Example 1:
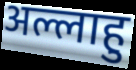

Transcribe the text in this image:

अल्लाहु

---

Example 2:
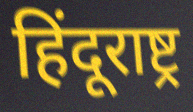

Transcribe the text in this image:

हिंदूराष्ट्र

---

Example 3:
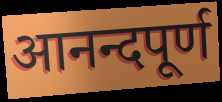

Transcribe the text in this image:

आनन्दपूर्ण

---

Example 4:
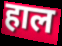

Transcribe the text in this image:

हाल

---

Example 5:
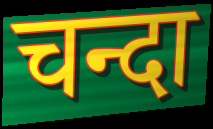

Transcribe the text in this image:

चन्दा